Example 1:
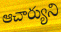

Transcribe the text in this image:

ఆచార్యుని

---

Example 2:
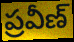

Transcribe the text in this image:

ప్రవీణ్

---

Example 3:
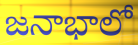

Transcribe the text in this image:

జనాభాలో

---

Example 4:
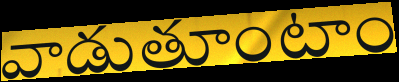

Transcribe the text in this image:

వాడుతూంటాం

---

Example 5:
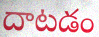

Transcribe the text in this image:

దాటడం